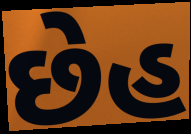
છેહ